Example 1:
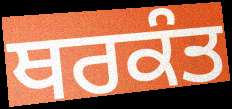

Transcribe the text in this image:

ਥਰਕੰਤ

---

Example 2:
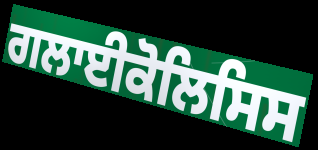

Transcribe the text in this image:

ਗਲਾਈਕੋਲਿਸਿਸ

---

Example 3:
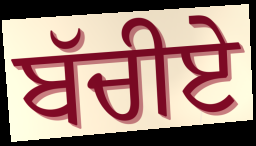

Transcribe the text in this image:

ਬੱਚੀਏ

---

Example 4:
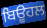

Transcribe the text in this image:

ਬਿਊਹਲ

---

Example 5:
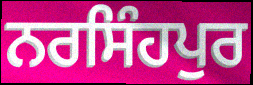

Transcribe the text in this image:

ਨਰਸਿੰਹਪੁਰ